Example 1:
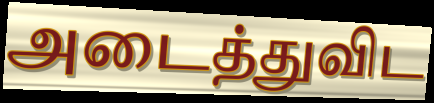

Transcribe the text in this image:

அடைத்துவிட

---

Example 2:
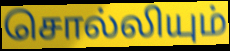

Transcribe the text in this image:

சொல்லியும்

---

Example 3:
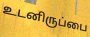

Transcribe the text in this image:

உடனிருப்பை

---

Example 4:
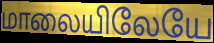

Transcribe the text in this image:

மாலையிலேயே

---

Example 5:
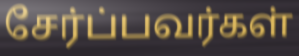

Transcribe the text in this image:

சேர்ப்பவர்கள்